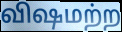
விஷமற்ற